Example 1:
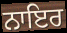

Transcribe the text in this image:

ਨਾਇਰ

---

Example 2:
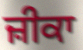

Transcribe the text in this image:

ਜ਼ੀਕਾ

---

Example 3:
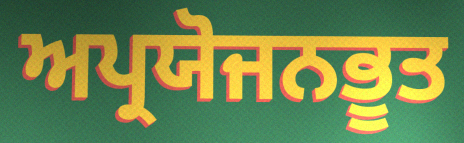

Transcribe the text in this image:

ਅਪ੍ਰਯੋਜਨਭੂਤ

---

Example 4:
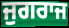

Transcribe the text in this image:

ਜੁਗਰਾਜ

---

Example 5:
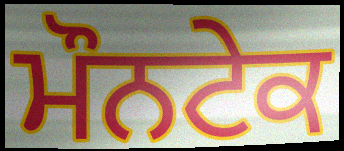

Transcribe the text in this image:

ਮੌਨਟੇਕ